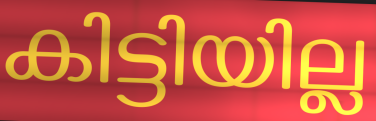
കിട്ടിയില്ല